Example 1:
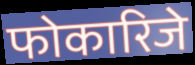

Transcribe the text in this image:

फोकारिजे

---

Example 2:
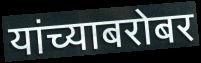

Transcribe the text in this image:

यांच्याबरोबर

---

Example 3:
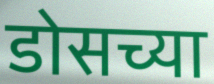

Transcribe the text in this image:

डोसच्या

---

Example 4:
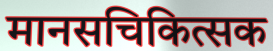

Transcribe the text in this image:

मानसचिकित्सक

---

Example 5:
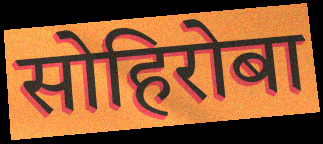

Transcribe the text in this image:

सोहिरोबा